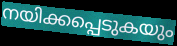
നയിക്കപ്പെടുകയും